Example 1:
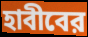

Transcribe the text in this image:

হাবীবের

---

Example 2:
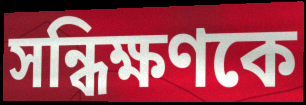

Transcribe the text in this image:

সন্ধিক্ষণকে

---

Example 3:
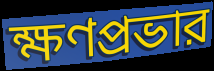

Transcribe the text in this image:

ক্ষণপ্রভার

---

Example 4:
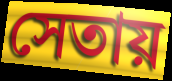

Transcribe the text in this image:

সেতায়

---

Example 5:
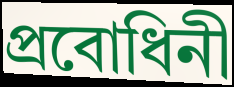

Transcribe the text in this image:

প্রবোধিনী